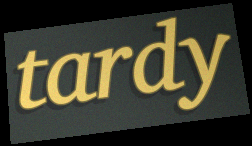
tardy